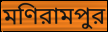
মণিরামপুর